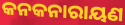
କନକନାରାୟଣ